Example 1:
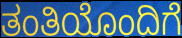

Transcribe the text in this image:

ತಂತಿಯೊಂದಿಗೆ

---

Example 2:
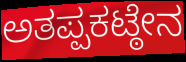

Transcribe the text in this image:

ಅತಪ್ಪಕಟ್ಠೇನ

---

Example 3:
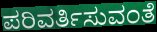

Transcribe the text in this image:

ಪರಿವರ್ತಿಸುವಂತೆ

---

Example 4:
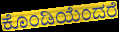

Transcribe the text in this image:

ಕೊಂಡಿಯೆಂದರೆ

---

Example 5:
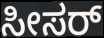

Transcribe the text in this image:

ಸೀಸರ್